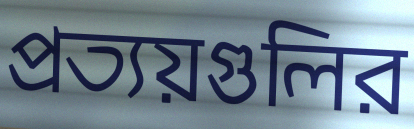
প্রত্যয়গুলির